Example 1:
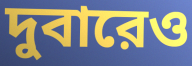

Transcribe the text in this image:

দুবারেও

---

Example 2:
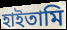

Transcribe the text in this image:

হাইতামি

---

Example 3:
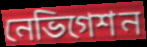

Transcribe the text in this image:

নেভিগেশন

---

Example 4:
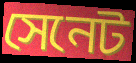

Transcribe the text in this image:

সেনেট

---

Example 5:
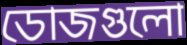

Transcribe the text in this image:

ডোজগুলো